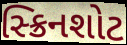
સ્ક્રિનશોટ